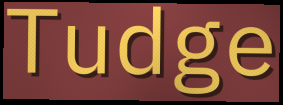
Tudge